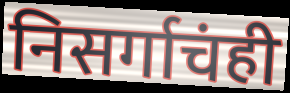
निसर्गाचंही